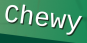
Chewy